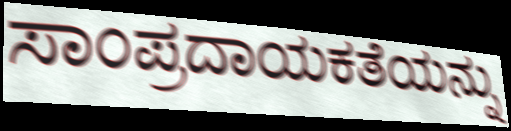
ಸಾಂಪ್ರದಾಯಕತೆಯನ್ನು